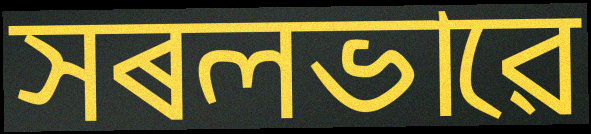
সৰলভাৱে